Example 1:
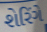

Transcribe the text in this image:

શેરિંગે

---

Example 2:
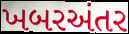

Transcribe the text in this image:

ખબરઅંતર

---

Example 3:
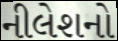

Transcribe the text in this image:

નીલેશનો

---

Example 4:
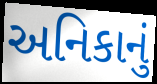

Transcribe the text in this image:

અનિકાનું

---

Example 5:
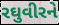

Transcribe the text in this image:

રઘુવીરને